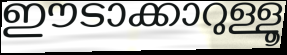
ഈടാക്കാറുള്ളൂ